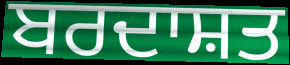
ਬਰਦਾਸ਼ਤ